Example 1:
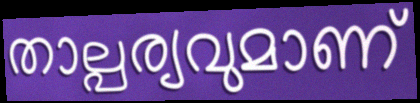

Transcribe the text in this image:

താല്പര്യവുമാണ്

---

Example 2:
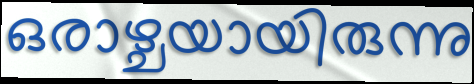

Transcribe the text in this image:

ഒരാഴ്ചയായിരുന്നു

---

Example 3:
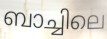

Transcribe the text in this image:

ബാച്ചിലെ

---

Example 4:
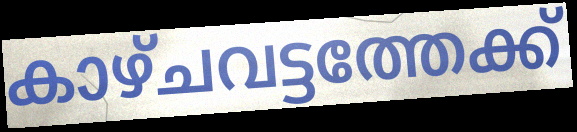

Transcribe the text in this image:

കാഴ്ചവട്ടത്തേക്ക്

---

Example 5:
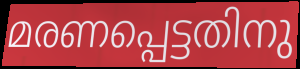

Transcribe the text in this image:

മരണപ്പെട്ടതിനു